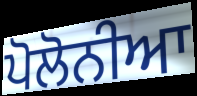
ਪੋਲੋਨੀਆ